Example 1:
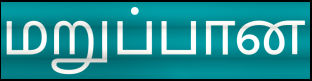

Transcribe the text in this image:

மறுப்பான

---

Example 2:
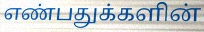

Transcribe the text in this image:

எண்பதுக்களின்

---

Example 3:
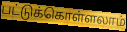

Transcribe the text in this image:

பட்டுக்கொள்ளலாம்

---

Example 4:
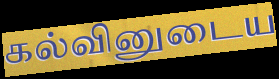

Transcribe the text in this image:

கல்வினுடைய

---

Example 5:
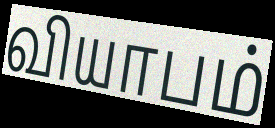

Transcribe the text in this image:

வியாபம்